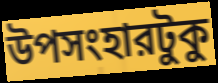
উপসংহারটুকু